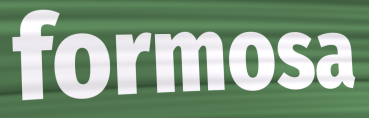
formosa